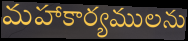
మహాకార్యములను